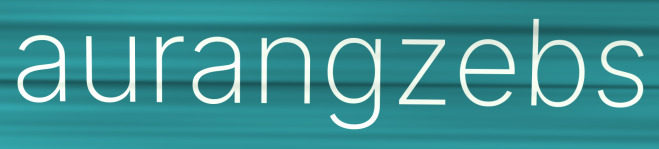
aurangzebs